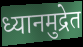
ध्यानमुद्रेत